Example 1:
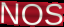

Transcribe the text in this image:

NOS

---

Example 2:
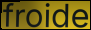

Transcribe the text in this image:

froide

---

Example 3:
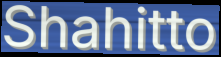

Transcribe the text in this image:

Shahitto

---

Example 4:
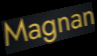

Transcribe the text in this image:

Magnan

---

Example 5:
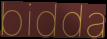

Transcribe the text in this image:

bidda